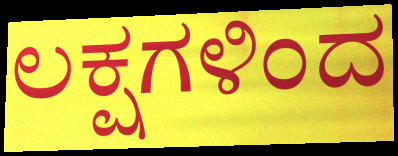
ಲಕ್ಷಗಳಿಂದ